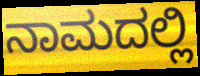
ನಾಮದಲ್ಲಿ